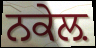
ਨਕੇਲ਼